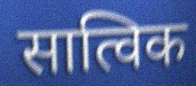
सात्विक